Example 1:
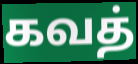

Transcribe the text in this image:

கவத்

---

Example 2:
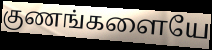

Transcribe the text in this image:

குணங்களையே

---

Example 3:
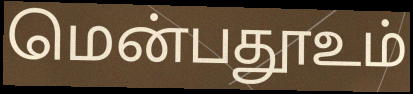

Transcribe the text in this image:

மென்பதூஉம்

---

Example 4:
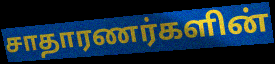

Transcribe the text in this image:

சாதாரணர்களின்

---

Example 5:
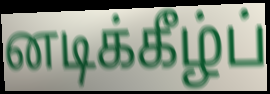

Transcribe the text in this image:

னடிக்கீழ்ப்